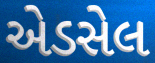
એડસેલ